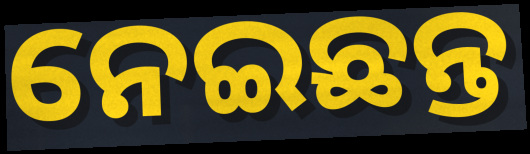
ନେଇଛନ୍ତ